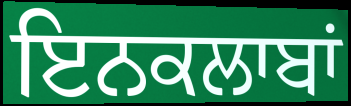
ਇਨਕਲਾਬਾਂ